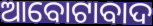
ଆବୋଟାବାଦ